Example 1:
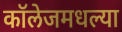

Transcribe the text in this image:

कॉलेजमधल्या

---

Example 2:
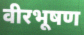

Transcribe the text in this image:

वीरभूषण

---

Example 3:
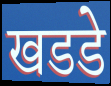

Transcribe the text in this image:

खडडे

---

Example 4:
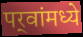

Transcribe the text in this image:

पर्वांमध्ये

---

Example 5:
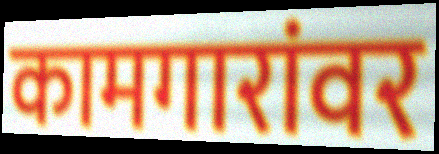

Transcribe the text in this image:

कामगारांवर